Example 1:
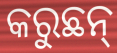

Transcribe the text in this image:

କରୁଛନ୍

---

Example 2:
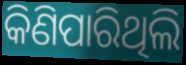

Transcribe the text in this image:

କିଣିପାରିଥିଲି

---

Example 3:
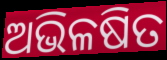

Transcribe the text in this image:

ଅଭିଳଷିତ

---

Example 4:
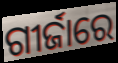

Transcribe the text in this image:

ଗୀର୍ଜାରେ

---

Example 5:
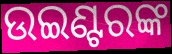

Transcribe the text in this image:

ଉଇଣ୍ଟରଙ୍କ